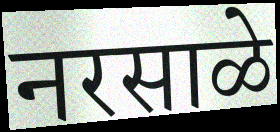
नरसाळे